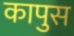
कापुस